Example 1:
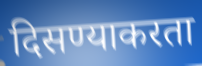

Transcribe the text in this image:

दिसण्याकरता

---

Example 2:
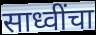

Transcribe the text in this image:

साध्वींचा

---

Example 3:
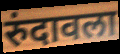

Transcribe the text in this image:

रुंदावला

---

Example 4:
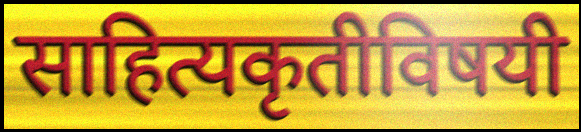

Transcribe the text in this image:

साहित्यकृतीविषयी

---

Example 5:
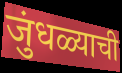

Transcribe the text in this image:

जुंधळ्याची